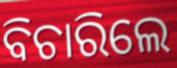
ବିଚାରିଲେ